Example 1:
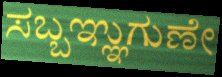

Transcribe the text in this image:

ಸಬ್ಬಞ್ಞುಗುಣೇ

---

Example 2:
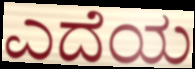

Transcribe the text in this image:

ಎದೆಯ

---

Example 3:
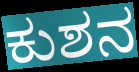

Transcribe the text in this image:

ಕುಶನ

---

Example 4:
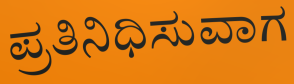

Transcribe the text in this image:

ಪ್ರತಿನಿಧಿಸುವಾಗ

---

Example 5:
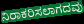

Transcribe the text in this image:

ನಿರಾಕರಿಸಲಾಗದವು